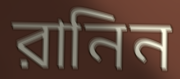
রানিন